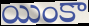
యింకా